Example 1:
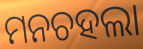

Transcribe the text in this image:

ମନଚହଲା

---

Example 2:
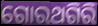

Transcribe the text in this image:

ଗୋରଥଗିରି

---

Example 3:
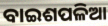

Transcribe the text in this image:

ବାଇଶପଳିଆ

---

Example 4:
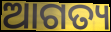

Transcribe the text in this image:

ଆଗତ୍ୟ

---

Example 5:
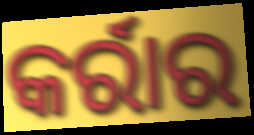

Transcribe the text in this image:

କର୍ରାର